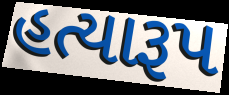
હત્યારૂપ